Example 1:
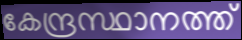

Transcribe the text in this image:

കേന്ദ്രസ്ഥാനത്ത്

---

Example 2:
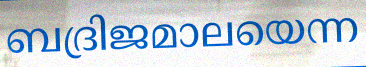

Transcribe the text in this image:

ബദ്രിജമാലയെന്ന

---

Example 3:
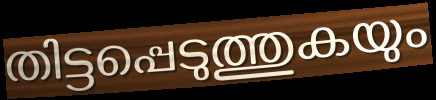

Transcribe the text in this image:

തിട്ടപ്പെടുത്തുകയും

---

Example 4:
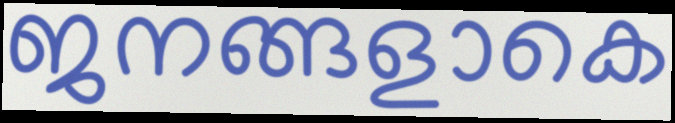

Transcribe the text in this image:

ജനങ്ങളാകെ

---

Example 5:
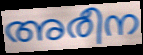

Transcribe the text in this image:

അരീന